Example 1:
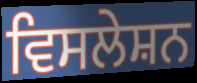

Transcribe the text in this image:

ਵਿਸਲੇਸ਼ਨ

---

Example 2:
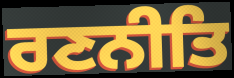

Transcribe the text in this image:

ਰਣਨੀਤਿ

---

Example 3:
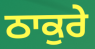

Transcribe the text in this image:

ਠਾਕੁਰੇ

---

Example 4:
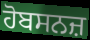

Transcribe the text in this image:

ਹੋਬਸਨਜ਼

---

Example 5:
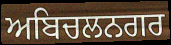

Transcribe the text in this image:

ਅਬਿਚਲਨਗਰ